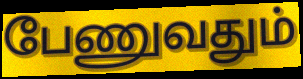
பேணுவதும்